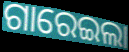
ଗାରେଇଲା